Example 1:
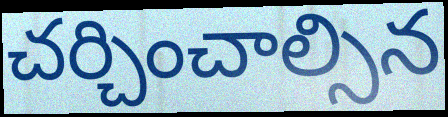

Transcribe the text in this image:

చర్చించాల్సిన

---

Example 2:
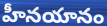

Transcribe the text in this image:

హీనయానం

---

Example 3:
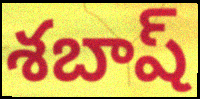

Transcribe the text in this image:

శబాష్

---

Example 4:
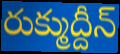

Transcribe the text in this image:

రుక్ముద్దీన్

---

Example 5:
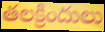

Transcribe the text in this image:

తలక్రిందులు